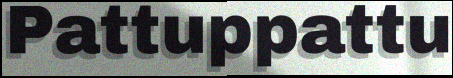
Pattuppattu